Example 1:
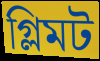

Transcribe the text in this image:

গ্লিমট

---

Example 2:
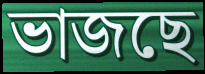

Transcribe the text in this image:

ভাজছে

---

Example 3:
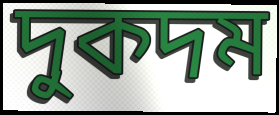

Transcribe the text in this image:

দুকদম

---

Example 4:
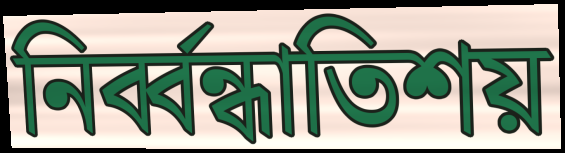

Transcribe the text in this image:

নির্ব্বন্ধাতিশয়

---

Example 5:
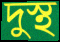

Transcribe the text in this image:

দুস্থ